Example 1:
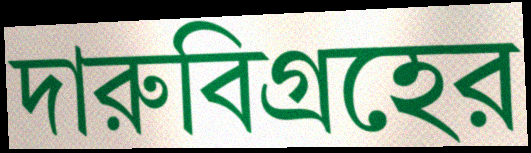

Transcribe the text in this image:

দারুবিগ্রহের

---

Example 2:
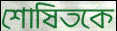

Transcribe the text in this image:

শোষিতকে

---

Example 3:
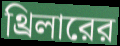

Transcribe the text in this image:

থ্রিলারের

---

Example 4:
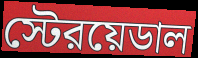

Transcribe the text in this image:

স্টেরয়েডাল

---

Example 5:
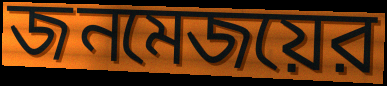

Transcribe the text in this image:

জনমেজয়ের